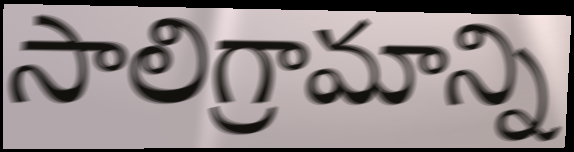
సాలిగ్రామాన్ని